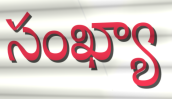
సంఖ్యా